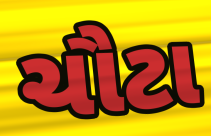
ચૌટા